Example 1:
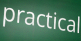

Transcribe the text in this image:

practical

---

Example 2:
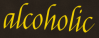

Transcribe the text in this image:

alcoholic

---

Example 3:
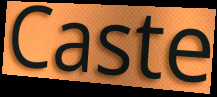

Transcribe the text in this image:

Caste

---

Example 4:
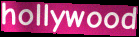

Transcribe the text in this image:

hollywood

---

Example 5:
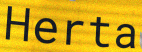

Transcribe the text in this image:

Herta